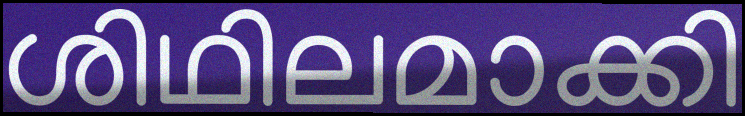
ശിഥിലമാക്കി